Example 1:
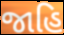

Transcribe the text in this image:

જાહિ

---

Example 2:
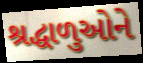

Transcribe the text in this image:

શ્રદ્ધાળુઓને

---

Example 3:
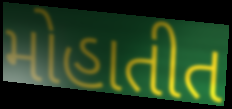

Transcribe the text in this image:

મોહાતીત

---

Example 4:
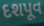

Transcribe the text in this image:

દશપૂવ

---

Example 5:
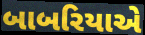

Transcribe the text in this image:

બાબરિયાએ